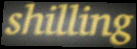
shilling